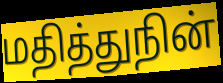
மதித்துநின்